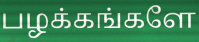
பழக்கங்களே